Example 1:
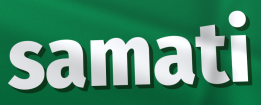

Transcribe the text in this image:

samati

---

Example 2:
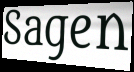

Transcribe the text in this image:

Sagen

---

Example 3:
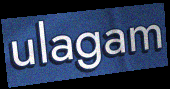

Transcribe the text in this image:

ulagam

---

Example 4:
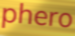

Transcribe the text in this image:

phero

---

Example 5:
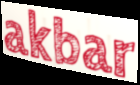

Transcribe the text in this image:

akbar